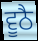
ਵੂਠੈ